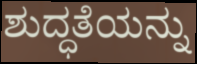
ಶುದ್ಧತೆಯನ್ನು